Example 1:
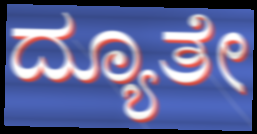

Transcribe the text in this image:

ದ್ಯೂತೇ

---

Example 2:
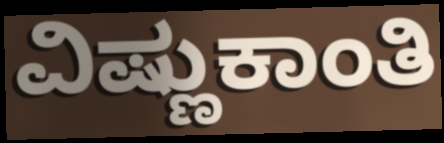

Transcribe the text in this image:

ವಿಷ್ಣುಕಾಂತಿ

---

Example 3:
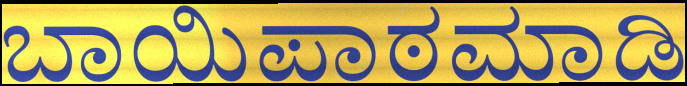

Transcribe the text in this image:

ಬಾಯಿಪಾಠಮಾಡಿ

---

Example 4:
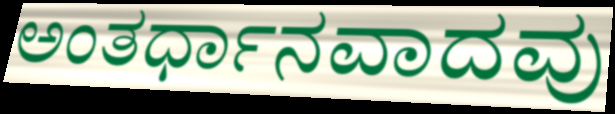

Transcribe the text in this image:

ಅಂತರ್ಧಾನವಾದವು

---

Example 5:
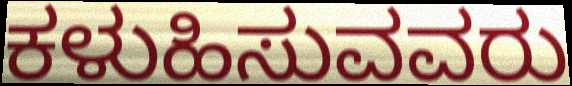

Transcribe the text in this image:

ಕಳುಹಿಸುವವರು